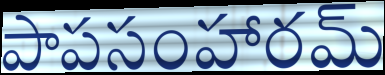
పాపసంహారమ్